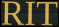
RIT